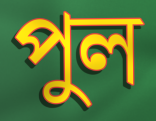
পুল